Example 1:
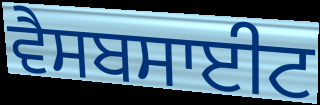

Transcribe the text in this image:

ਵੈਸਬਸਾਈਟ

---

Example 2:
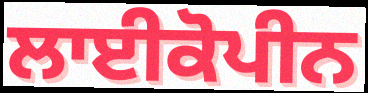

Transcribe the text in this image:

ਲਾਈਕੋਪੀਨ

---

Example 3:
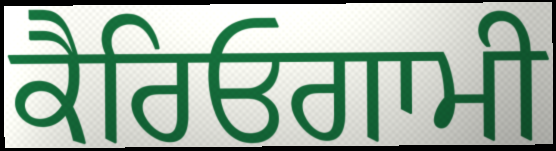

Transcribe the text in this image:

ਕੈਰਿਓਗਾਮੀ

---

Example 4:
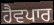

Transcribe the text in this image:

ਹੈਵਪਾਰ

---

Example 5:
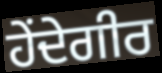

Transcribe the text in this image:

ਹੇਂਦੇਗੀਰ